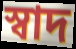
স্বাদ